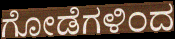
ಗೋಡೆಗಳಿಂದ